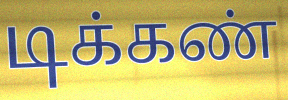
டிக்கண்